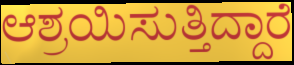
ಆಶ್ರಯಿಸುತ್ತಿದ್ದಾರೆ